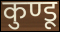
कुण्डू